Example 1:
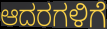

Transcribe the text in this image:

ಆದರಗಳಿಗೆ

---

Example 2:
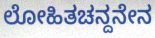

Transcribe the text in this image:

ಲೋಹಿತಚನ್ದನೇನ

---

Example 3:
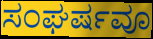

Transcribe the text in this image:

ಸಂಘರ್ಷವೂ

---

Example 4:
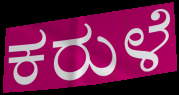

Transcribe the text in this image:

ಕರುಳೆ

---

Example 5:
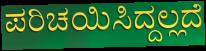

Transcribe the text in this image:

ಪರಿಚಯಿಸಿದ್ದಲ್ಲದೆ